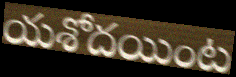
యశోదయింట